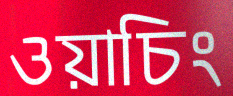
ওয়াচিং